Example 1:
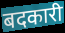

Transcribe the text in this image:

बदकारी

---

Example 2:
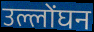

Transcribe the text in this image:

उल्लोंघन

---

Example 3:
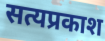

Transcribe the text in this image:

सत्यप्रकाश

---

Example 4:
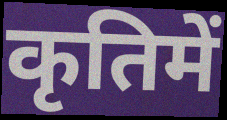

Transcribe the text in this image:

कृतिमें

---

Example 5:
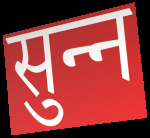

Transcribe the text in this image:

सुन्‍न